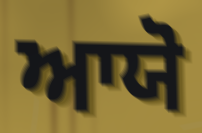
ਆਯੋ